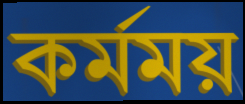
কর্মময়